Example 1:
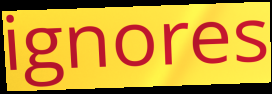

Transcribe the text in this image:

ignores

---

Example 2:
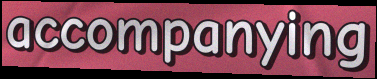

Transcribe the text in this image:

accompanying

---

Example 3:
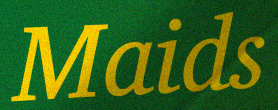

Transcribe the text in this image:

Maids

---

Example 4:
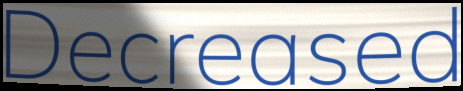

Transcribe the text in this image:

Decreased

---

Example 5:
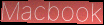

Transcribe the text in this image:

Macbook